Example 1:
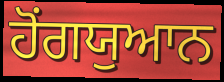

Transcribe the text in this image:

ਹੋਂਗਯੁਆਨ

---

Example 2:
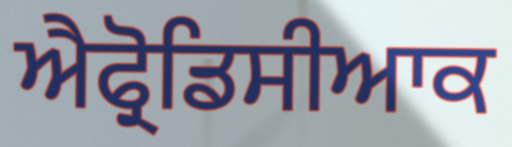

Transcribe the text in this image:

ਐਫ੍ਰੋਡਿਸੀਆਕ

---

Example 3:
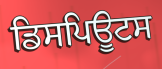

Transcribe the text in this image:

ਡਿਸਪਿਊਟਸ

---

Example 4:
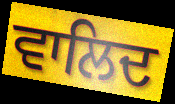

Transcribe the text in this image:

ਵਾਲਿਦ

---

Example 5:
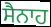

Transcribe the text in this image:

ਸੈਨਾਹ